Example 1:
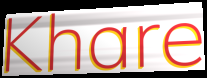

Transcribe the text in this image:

Khare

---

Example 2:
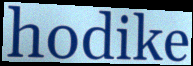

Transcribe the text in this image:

hodike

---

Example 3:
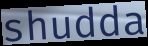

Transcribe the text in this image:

shudda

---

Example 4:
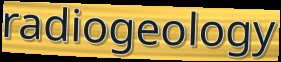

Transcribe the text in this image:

radiogeology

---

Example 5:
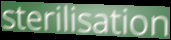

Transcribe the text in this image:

sterilisation